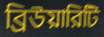
ব্রিউয়ারিটি